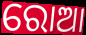
ରୋଆ